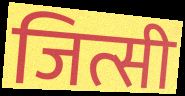
जित्सी